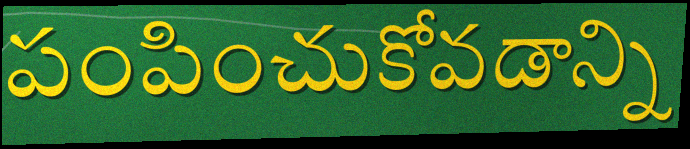
పంపించుకోవడాన్ని